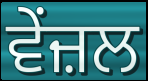
ਵੇਂਜ਼ਲ